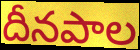
దీనపాల